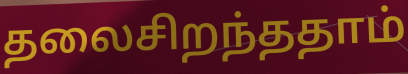
தலைசிறந்ததாம்